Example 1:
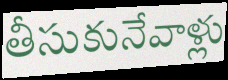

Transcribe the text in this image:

తీసుకునేవాళ్లు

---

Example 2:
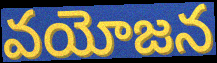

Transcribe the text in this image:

వయోజన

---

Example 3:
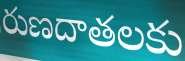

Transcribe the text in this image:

రుణదాతలకు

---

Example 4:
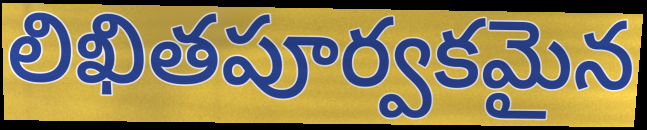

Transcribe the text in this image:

లిఖితపూర్వకమైన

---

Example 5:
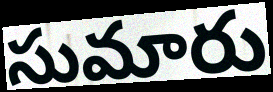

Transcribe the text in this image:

సుమారు